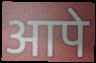
आपे